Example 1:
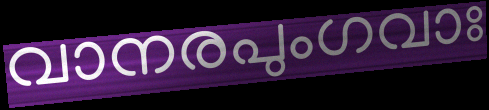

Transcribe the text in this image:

വാനരപുംഗവാഃ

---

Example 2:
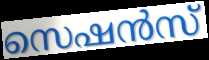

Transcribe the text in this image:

സെഷൻസ്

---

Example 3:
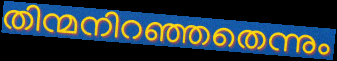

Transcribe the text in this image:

തിന്മനിറഞ്ഞതെന്നും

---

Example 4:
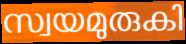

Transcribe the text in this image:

സ്വയമുരുകി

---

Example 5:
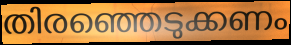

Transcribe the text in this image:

തിരഞ്ഞെടുക്കണം